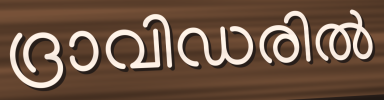
ദ്രാവിഡരിൽ